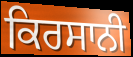
ਕਿਰਸਾਨੀ